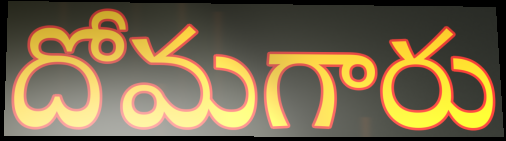
దోమగారు